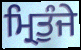
ਮ੍ਰਿਤੁੰਜੇ